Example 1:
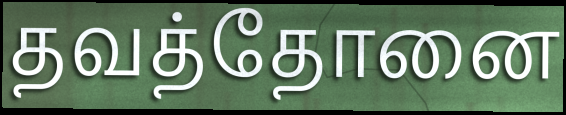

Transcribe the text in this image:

தவத்தோனை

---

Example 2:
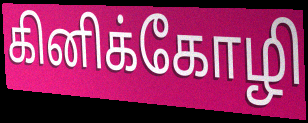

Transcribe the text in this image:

கினிக்கோழி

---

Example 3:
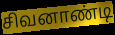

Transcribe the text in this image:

சிவனாண்டி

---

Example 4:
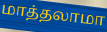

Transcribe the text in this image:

மாத்தலாமா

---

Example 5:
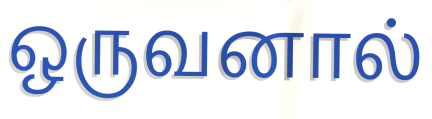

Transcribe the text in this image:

ஒருவனால்